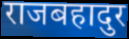
राजबहादुर